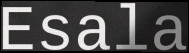
Esala